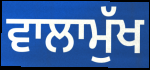
ਵਾਲਾਮੁੱਖ